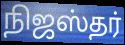
நிஜஸ்தர்